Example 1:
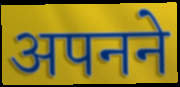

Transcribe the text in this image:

अपनने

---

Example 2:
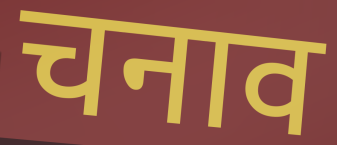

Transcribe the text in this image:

चनाव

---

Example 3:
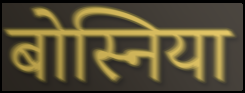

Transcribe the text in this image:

बोस्निया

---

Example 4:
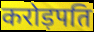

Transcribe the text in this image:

करोड़पति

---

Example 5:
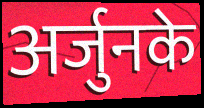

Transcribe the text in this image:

अर्जुनके